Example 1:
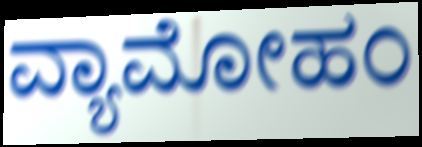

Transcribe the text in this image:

ವ್ಯಾಮೋಹಂ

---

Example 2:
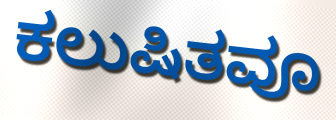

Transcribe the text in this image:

ಕಲುಷಿತವೂ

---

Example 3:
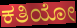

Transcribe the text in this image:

ಕತಿಯೋ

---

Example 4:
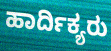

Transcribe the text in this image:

ಹಾರ್ದಿಕ್ಯರು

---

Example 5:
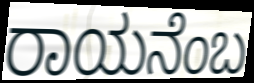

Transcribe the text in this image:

ರಾಯನೆಂಬ